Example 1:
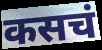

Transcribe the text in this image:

कसचं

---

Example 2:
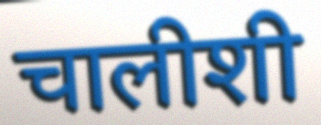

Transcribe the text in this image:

चालीशी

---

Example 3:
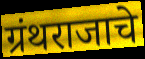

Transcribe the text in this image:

ग्रंथराजाचे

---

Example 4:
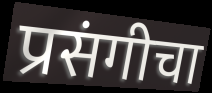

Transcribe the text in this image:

प्रसंगीचा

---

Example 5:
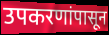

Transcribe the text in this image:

उपकरणांपासून